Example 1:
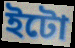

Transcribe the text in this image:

ইটো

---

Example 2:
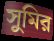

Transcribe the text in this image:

সুমির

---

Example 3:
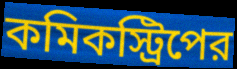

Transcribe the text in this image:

কমিকস্ট্রিপের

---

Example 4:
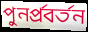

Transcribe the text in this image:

পুনর্প্রবর্তন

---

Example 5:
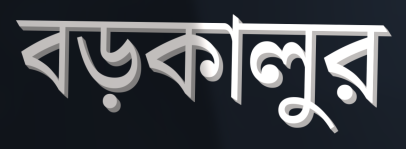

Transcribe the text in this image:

বড়কালুর